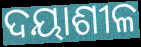
ଦୟାଶୀଳ